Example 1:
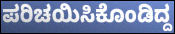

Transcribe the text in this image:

ಪರಿಚಯಿಸಿಕೊಂಡಿದ್ದ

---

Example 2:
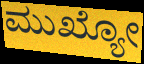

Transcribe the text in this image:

ಮುಖ್ಯೋ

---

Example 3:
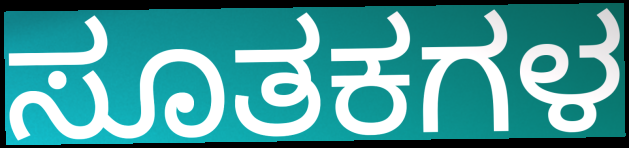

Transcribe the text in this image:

ಸೂತಕಗಳ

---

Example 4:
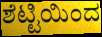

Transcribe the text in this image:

ಶೆಟ್ಟಿಯಿಂದ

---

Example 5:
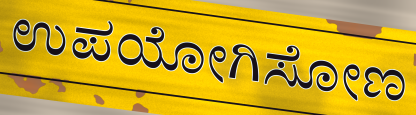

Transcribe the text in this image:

ಉಪಯೋಗಿಸೋಣ